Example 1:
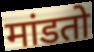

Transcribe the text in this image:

मांडतो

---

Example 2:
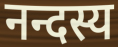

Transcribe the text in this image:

नन्दस्य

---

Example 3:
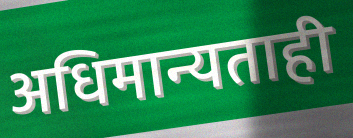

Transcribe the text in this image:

अधिमान्यताही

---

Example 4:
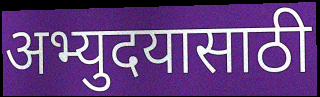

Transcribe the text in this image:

अभ्युदयासाठी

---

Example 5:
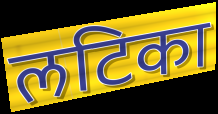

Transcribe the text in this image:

लटिका